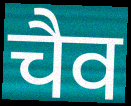
चैव